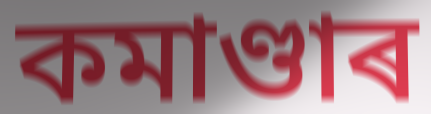
কমাণ্ডাৰ